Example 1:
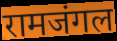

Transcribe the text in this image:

रामजंगल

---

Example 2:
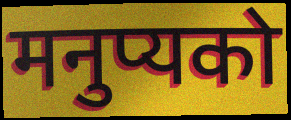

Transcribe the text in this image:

मनुप्यको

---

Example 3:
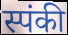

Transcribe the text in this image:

स्पंकी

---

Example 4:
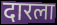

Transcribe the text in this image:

दारला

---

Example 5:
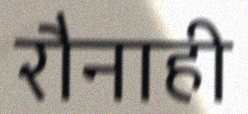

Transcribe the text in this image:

रौनाही